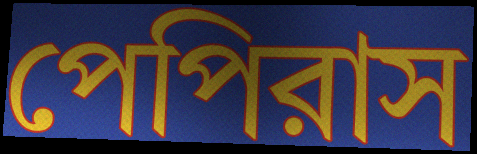
পেপিরাস